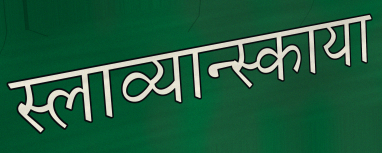
स्लाव्यान्स्काया